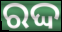
ରଦ୍ଦ